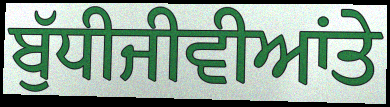
ਬੁੱਧੀਜੀਵੀਆਂਤੇ